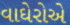
વાઘેરોએ